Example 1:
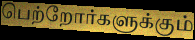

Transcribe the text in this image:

பெற்றோர்களுக்கும்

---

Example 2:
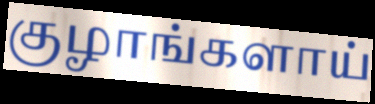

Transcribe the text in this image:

குழாங்களாய்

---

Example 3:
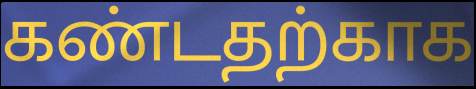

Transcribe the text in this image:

கண்டதற்காக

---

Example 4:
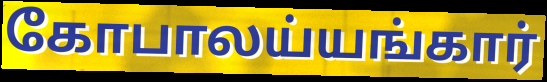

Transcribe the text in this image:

கோபாலய்யங்கார்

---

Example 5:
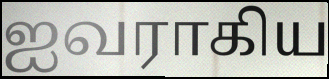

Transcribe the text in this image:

ஐவராகிய